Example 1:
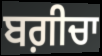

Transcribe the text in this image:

ਬਗ਼ੀਚਾ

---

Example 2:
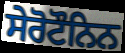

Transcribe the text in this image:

ਸੇਰੋਟੌਨਿਨ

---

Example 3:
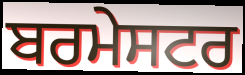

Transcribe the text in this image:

ਬਰਮੇਸਟਰ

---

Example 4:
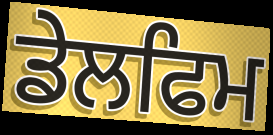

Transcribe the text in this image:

ਡੇਲਫਿਮ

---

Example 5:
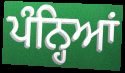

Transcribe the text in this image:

ਪੰਨ੍ਹਿਆਂ